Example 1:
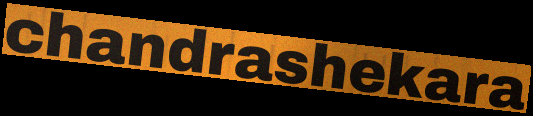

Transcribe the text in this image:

chandrashekara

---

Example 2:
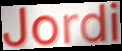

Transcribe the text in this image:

Jordi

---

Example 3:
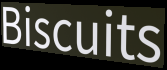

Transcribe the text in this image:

Biscuits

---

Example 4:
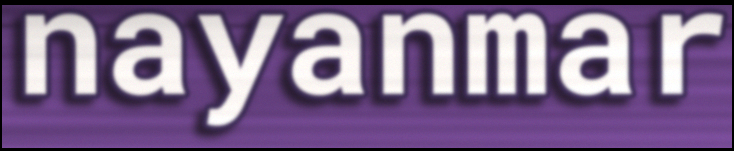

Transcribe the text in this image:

nayanmar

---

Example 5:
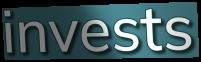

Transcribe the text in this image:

invests